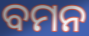
ବମନ